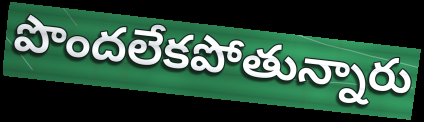
పొందలేకపోతున్నారు